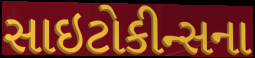
સાઇટોકીન્સના